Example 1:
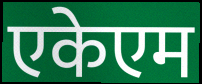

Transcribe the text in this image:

एकेएम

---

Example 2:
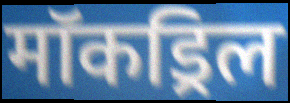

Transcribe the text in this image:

मॉकड्रिल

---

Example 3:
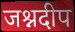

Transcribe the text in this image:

जश्नदीप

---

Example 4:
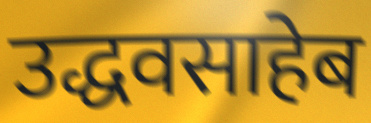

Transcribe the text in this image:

उद्धवसाहेब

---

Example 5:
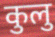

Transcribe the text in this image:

कुलु